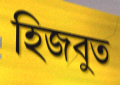
হিজবুত